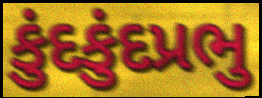
કુંદકુંદપ્રભુ